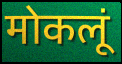
मोकलूं